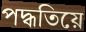
পদ্ধতিয়ে